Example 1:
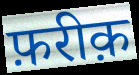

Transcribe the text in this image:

फ़रीक़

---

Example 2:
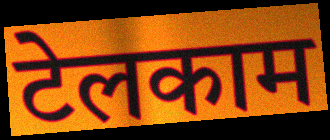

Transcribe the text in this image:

टेलकाम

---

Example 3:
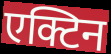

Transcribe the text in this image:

एक्टिन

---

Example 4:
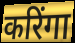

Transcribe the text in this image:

करिंगा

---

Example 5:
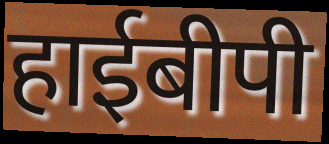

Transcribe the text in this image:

हाईबीपी